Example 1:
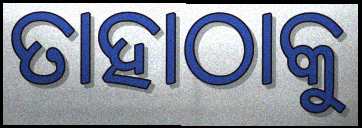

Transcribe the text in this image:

ତାହାଠାକୁ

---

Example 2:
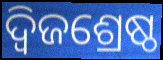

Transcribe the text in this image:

ଦ୍ୱିଜଶ୍ରେଷ୍ଠ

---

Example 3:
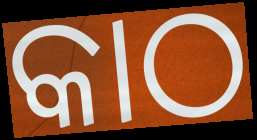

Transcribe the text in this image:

କାଠ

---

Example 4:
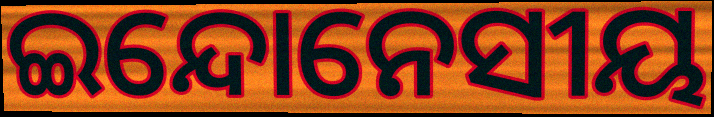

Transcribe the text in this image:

ଇନ୍ଦୋନେସୀୟ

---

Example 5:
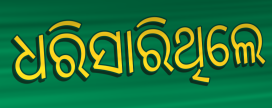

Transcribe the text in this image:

ଧରିସାରିଥିଲେ